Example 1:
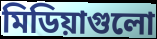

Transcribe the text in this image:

মিডিয়াগুলো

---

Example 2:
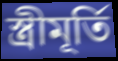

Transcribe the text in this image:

স্ত্রীমূর্তি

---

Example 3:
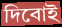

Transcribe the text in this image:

দিবোই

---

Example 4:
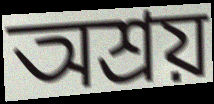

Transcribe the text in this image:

অশ্রয়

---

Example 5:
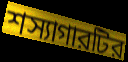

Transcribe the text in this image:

শস্যাগারটির